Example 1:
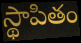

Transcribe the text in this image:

స్థాపితం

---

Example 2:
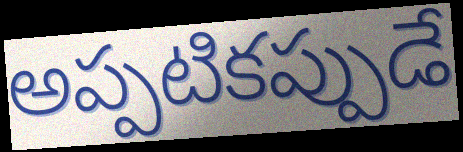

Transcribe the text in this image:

అప్పటికప్పుడే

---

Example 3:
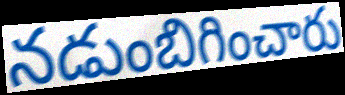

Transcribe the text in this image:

నడుంబిగించారు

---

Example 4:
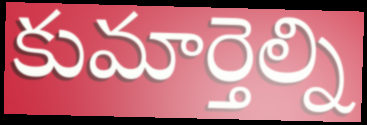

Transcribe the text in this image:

కుమార్తెల్ని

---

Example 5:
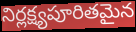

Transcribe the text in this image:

నిర్లక్ష్యపూరితమైన